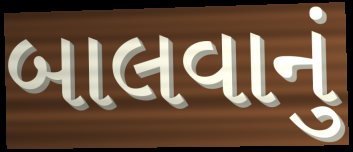
બાલવાનું